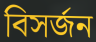
বিসর্জন